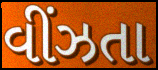
વીંઝતા